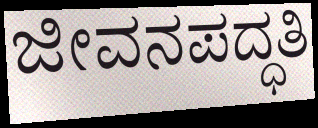
ಜೀವನಪದ್ಧತಿ